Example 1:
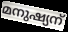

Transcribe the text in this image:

മനുഷ്യന്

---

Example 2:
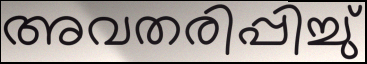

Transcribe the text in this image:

അവതരിപ്പിച്ചു്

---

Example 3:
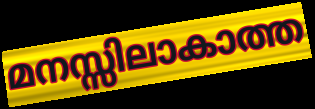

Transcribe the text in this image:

മനസ്സിലാകാത്ത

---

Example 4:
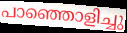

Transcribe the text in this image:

പാഞ്ഞൊളിച്ചു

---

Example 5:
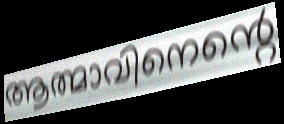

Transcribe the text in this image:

ആത്മാവിനെന്റെ